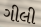
ગીલી